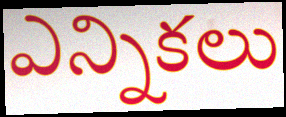
ఎన్నికలు